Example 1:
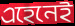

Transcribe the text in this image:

এহেনেই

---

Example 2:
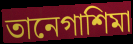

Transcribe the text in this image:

তানেগাশিমা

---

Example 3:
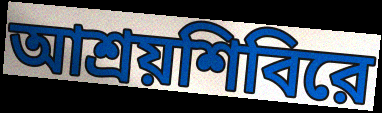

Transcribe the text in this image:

আশ্রয়শিবিরে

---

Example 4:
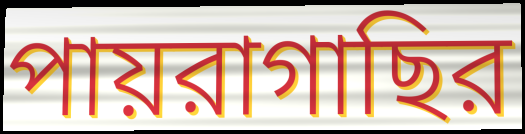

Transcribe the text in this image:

পায়রাগাছির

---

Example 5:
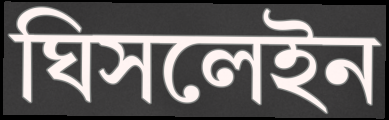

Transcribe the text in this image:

ঘিসলেইন